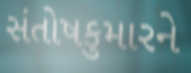
સંતોષકુમારને